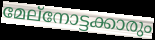
മേല്നോട്ടക്കാരും